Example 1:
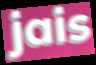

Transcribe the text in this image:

jais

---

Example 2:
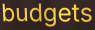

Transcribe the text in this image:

budgets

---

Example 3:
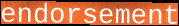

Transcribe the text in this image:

endorsement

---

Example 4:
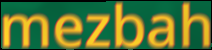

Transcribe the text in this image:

mezbah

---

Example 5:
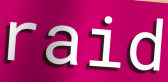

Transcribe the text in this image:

raid